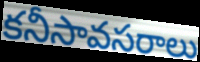
కనీసావసరాలు